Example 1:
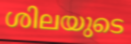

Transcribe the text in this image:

ശിലയുടെ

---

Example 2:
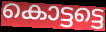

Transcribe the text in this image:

കൊട്ടട്ടെ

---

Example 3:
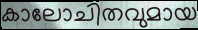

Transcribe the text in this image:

കാലോചിതവുമായ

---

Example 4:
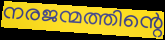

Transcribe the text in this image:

നരജന്മത്തിന്റെ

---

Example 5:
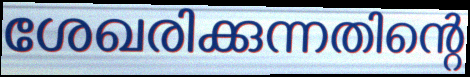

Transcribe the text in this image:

ശേഖരിക്കുന്നതിന്റെ